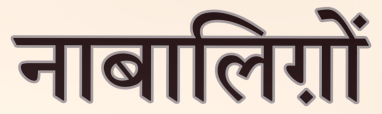
नाबालिग़ों